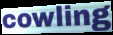
cowling